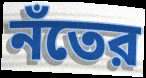
নঁতের